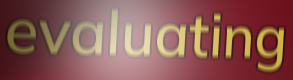
evaluating